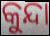
କୁନ୍ଦା